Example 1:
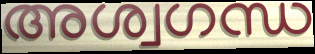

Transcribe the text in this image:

അശ്വഗന്ധ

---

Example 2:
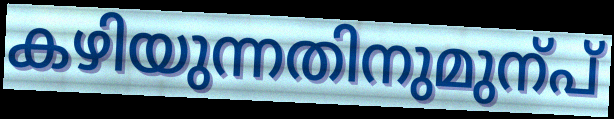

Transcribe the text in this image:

കഴിയുന്നതിനുമുന്പ്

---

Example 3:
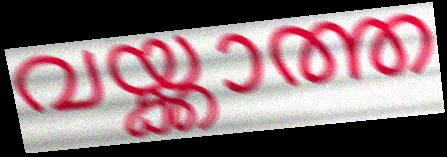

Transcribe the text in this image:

വയ്ക്കാത്ത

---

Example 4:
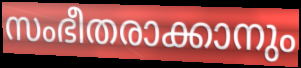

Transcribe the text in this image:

സംഭീതരാക്കാനും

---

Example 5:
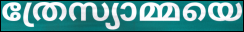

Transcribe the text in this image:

ത്രേസ്യാമ്മയെ